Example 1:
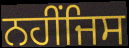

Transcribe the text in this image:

ਨਹੀਂਜਿਸ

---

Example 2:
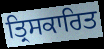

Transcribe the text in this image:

ਤ੍ਰਿਸਕਾਰਿਤ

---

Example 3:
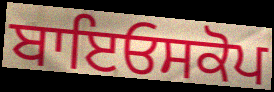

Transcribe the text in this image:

ਬਾਇਓਸਕੋਪ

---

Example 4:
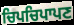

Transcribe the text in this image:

ਚਿਪਚਿਪਾਪਣ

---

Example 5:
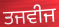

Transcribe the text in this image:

ਤਜਵੀਜ